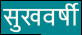
सुखवर्षी